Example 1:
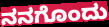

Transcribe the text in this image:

ನನಗೊಂದು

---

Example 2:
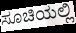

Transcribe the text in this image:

ಸೂಚಿಯಲ್ಲಿ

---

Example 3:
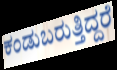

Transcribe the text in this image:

ಕಂಡುಬರುತ್ತಿದ್ದರೆ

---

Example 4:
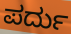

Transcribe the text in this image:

ಪರ್ದು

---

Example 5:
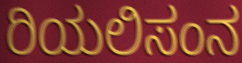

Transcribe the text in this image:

ರಿಯಲಿಸಂನ